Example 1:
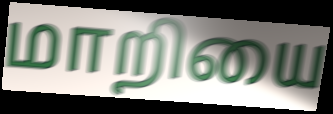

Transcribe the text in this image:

மாறியை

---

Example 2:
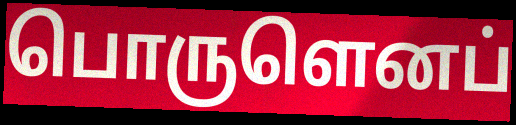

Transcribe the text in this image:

பொருளெனப்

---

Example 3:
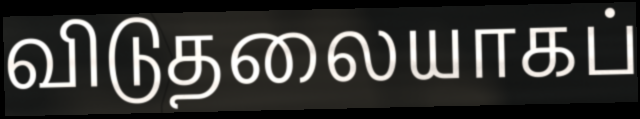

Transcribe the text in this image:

விடுதலையாகப்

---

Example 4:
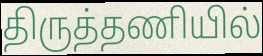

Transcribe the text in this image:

திருத்தணியில்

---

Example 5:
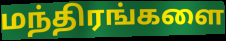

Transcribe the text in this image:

மந்திரங்களை